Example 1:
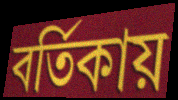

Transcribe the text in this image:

বর্তিকায়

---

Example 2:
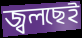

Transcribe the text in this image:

জ্বলছেই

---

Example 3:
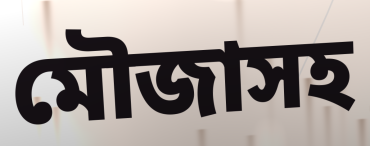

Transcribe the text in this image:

মৌজাসহ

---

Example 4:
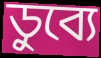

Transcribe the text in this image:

ডুব্যে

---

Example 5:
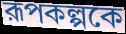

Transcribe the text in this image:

রূপকল্পকে